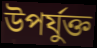
উপৰ্যুক্ত